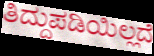
ತಿದ್ದುಪಡಿಯಿಲ್ಲದೆ